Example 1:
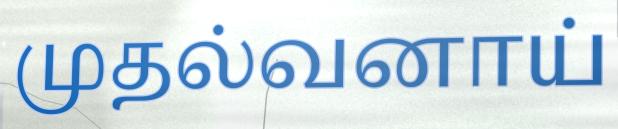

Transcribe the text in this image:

முதல்வனாய்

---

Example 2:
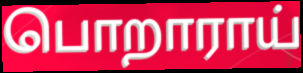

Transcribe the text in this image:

பொறாராய்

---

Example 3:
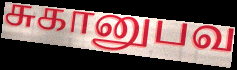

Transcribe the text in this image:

சுகானுபவ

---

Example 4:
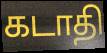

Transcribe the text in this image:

கடாதி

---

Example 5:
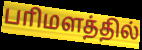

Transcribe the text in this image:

பரிமளத்தில்